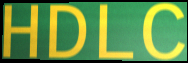
HDLC